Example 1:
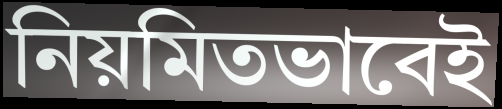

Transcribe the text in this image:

নিয়মিতভাবেই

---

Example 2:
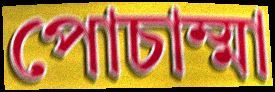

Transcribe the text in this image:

পোচাম্মা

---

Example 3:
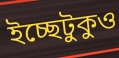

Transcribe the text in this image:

ইচ্ছেটুকুও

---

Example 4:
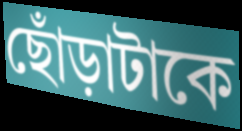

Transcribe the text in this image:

ছোঁড়াটাকে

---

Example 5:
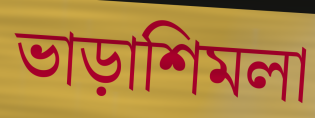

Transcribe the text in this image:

ভাড়াশিমলা